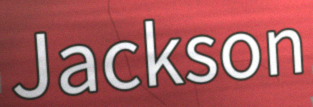
Jackson